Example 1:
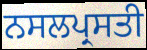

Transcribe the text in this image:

ਨਸਲਪ੍ਰਸਤੀ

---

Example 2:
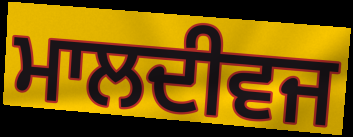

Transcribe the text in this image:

ਮਾਲਦੀਵਜ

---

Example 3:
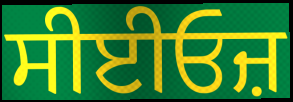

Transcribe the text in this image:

ਸੀਈਓਜ਼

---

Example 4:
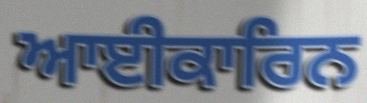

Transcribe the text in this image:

ਆਈਕਾਰਿਨ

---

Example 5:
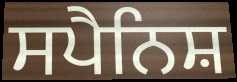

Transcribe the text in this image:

ਸਪੈਨਿਸ਼